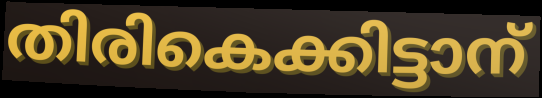
തിരികെക്കിട്ടാന്